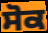
ਸੋਕ